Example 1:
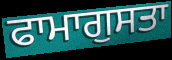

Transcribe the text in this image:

ਫਾਮਾਗੁਸਤਾ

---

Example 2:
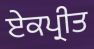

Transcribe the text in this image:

ਏਕਪ੍ਰੀਤ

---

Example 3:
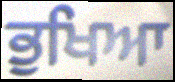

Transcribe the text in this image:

ਭੁਖਿਆ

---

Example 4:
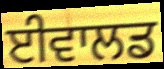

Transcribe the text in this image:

ਈਵਾਲਡ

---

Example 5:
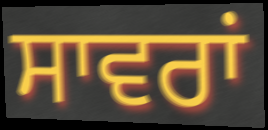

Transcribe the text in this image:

ਸਾਵਰਾਂ